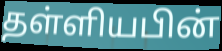
தள்ளியபின்